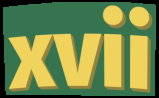
xvii